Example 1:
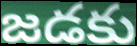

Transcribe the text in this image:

జడకు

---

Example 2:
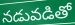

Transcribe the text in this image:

నడువడితో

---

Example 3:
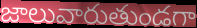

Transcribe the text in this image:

జాలువారుతుండగా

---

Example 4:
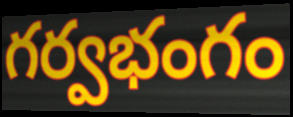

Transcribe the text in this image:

గర్వభంగం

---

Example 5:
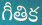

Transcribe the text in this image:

గీతిక